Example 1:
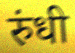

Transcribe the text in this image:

रुंधी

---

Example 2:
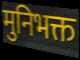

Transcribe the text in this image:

मुनिभक्त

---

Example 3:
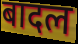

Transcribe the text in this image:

बादल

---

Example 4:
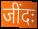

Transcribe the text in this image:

जींदः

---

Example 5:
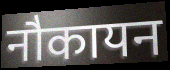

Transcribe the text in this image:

नौकायन